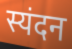
स्यंदन